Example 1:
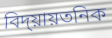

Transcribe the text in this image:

বিদ্য়ায়তনিক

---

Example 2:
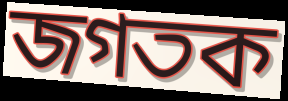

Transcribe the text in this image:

জগতক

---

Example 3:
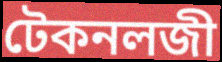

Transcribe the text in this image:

টেকনলজী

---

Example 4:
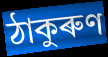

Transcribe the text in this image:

ঠাকুৰুণ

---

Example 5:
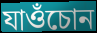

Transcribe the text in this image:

যাওঁচোন